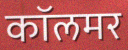
कॉलमर